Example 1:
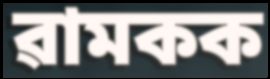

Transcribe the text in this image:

ৱামকক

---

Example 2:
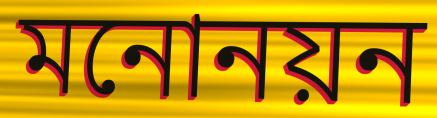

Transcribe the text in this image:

মনোনয়ন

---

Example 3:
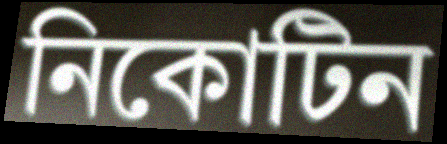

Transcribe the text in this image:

নিকোটিন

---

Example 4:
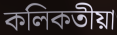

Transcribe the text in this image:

কলিকতীয়া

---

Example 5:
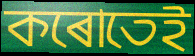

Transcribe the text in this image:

কৰোতেই